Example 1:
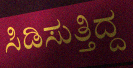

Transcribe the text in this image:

ಸಿಡಿಸುತ್ತಿದ್ದ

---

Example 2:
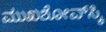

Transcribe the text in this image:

ಮುಖಶೋವ್‌ಸ್ಕಿ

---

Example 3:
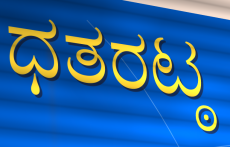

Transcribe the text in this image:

ಧತರಟ್ಠ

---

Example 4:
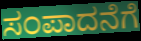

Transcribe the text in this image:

ಸಂಪಾದನೆಗೆ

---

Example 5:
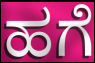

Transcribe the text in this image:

ಹಗೆ